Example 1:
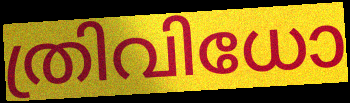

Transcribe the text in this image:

ത്രിവിധോ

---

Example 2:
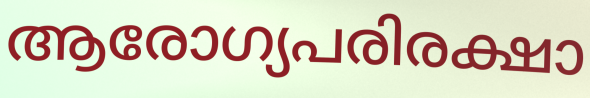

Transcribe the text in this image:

ആരോഗ്യപരിരക്ഷാ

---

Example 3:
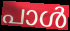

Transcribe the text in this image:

പാൾ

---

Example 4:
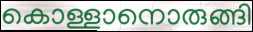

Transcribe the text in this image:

കൊള്ളാനൊരുങ്ങി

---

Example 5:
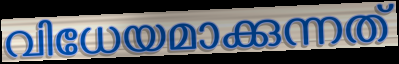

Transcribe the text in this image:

വിധേയമാക്കുന്നത്